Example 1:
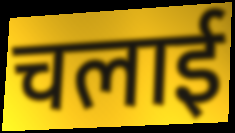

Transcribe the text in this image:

चलाई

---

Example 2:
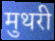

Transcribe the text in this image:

मुथरी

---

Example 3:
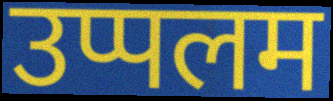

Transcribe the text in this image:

उप्पलम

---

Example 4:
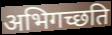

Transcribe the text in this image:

अभिगच्छति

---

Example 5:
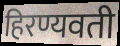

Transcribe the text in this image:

हिरण्यवती